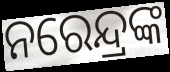
ନରେନ୍ଦ୍ରଙ୍କ